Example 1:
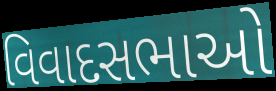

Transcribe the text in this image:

વિવાદસભાઓ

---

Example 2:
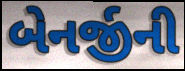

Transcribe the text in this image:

બેનર્જીની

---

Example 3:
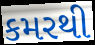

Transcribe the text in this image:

કમરથી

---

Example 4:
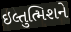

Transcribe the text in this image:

ઇલ્તુત્મિશને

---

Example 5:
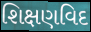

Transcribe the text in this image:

શિક્ષણવિદ